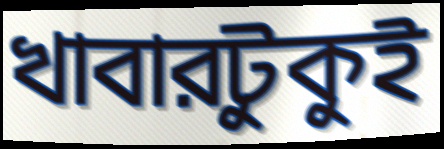
খাবারটুকুই